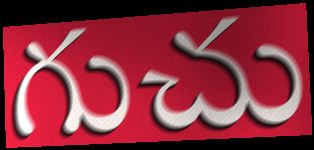
గుచు